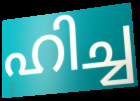
ഹിച്ച